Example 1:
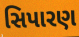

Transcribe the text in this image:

સિપારણ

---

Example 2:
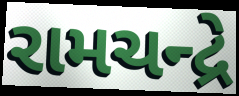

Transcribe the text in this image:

રામચન્દ્રે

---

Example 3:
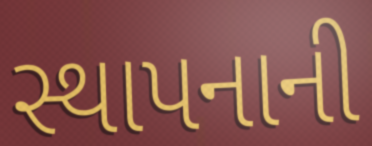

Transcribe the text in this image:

સ્થાપનાની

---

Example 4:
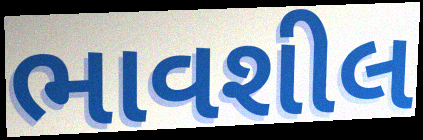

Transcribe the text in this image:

ભાવશીલ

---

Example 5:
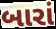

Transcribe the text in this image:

બારાં